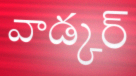
వాడ్కర్